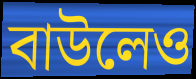
বাউলেও